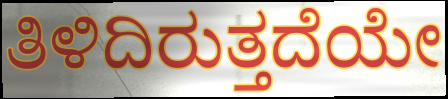
ತಿಳಿದಿರುತ್ತದೆಯೇ